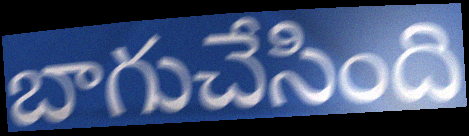
బాగుచేసింది